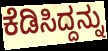
ಕೆಡಿಸಿದ್ದನ್ನು